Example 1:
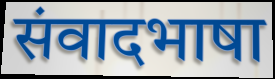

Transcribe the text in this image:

संवादभाषा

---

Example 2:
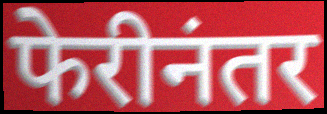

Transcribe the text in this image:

फेरीनंतर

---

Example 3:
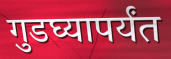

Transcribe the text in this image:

गुडघ्यापर्यंत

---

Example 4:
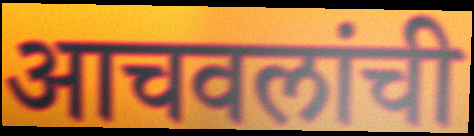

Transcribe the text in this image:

आचवलांची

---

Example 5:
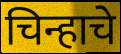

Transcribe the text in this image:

चिन्हाचे